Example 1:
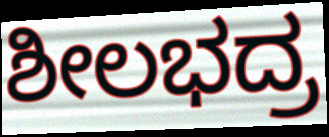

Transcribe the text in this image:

ಶೀಲಭದ್ರ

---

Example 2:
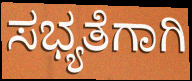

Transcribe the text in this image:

ಸಭ್ಯತೆಗಾಗಿ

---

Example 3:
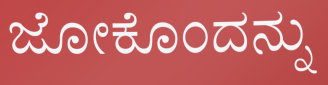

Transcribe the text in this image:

ಜೋಕೊಂದನ್ನು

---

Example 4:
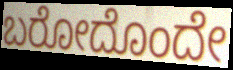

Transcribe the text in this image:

ಬರೋದೊಂದೇ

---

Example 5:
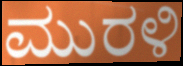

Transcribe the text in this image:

ಮುರಳಿ